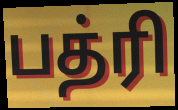
பத்ரி